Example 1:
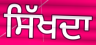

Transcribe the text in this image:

ਸਿੱਖਦਾ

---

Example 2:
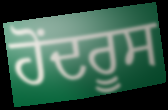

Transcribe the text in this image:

ਹੋਂਦਰੂਸ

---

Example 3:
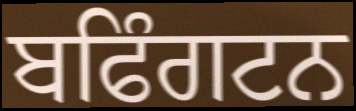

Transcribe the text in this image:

ਬਫਿੰਗਟਨ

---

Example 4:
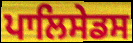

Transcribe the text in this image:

ਪਾਲਿਸੇਡਸ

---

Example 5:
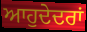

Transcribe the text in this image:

ਆਹੁਦੇਦਰਾਂ